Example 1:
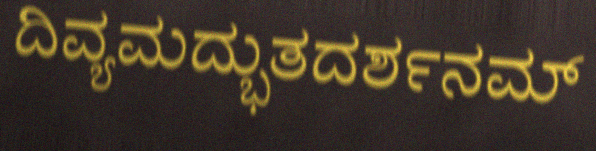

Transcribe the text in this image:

ದಿವ್ಯಮದ್ಭುತದರ್ಶನಮ್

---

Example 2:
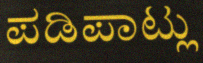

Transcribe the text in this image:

ಪಡಿಪಾಟ್ಲು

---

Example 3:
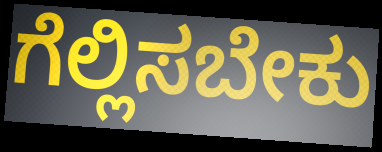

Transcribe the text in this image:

ಗೆಲ್ಲಿಸಬೇಕು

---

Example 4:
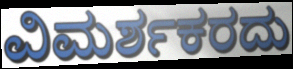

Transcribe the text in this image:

ವಿಮರ್ಶಕರದು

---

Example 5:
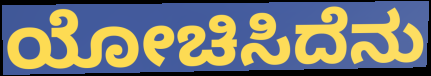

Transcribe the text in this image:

ಯೋಚಿಸಿದೆನು